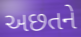
અછતને